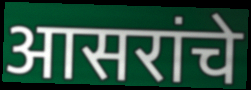
आसरांचे